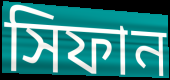
সিফান